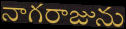
నాగరాజును